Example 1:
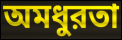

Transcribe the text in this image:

অমধুরতা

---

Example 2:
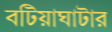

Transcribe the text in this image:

বটিয়াঘাটার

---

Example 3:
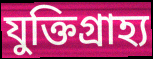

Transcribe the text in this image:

যুক্তিগ্রাহ্য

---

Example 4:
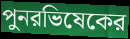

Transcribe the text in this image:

পুনরভিষেকের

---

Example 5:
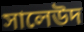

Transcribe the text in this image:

সালেউদ